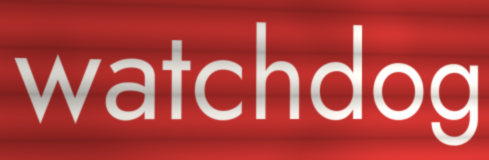
watchdog